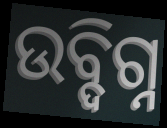
ଉବ୍ଦିଗ୍ନ